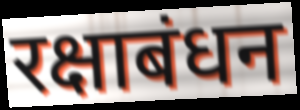
रक्षाबंधन